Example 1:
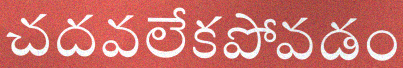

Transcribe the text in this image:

చదవలేకపోవడం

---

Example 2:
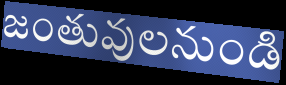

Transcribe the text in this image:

జంతువులనుండి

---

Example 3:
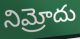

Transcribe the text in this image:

నిమ్రోదు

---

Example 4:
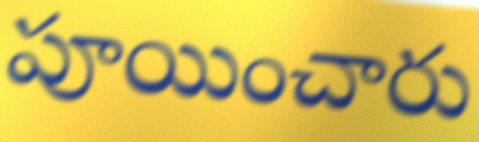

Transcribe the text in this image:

పూయించారు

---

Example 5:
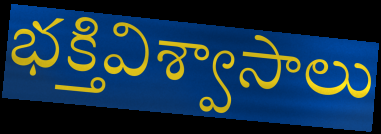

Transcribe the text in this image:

భక్తివిశ్వాసాలు